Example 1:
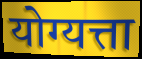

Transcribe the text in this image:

योग्यत्ता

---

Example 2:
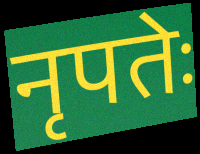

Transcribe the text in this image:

नृपतेः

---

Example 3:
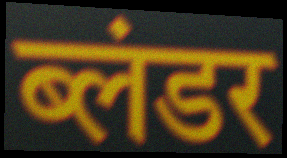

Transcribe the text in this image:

ब्लंडर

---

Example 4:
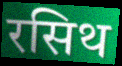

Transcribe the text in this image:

रसिथ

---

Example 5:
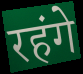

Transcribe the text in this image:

रहंगे